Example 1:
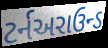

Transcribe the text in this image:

ટર્નઅરાઉન્ડ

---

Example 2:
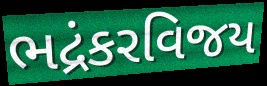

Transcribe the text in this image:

ભદ્રંકરવિજય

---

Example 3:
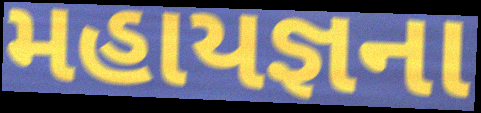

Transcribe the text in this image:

મહાયજ્ઞના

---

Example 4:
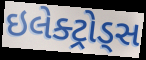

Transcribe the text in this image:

ઇલેક્ટ્રોડ્સ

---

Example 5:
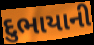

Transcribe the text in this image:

દુભાયાની